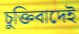
চুক্তিবাদেই